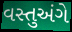
વસ્તુઅંગે